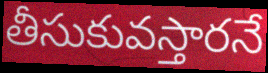
తీసుకువస్తారనే